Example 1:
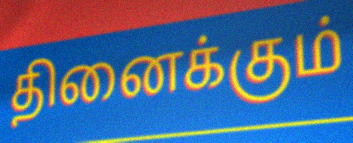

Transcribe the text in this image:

தினைக்கும்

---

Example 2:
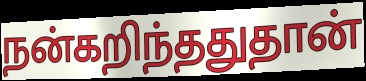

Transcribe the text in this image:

நன்கறிந்ததுதான்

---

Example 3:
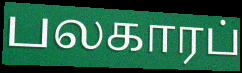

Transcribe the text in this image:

பலகாரப்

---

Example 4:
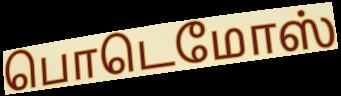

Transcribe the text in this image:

பொடெமோஸ்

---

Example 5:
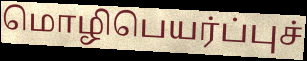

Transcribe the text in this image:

மொழிபெயர்ப்புச்